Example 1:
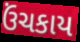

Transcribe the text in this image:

ઉંચકાય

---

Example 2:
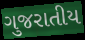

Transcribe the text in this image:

ગુજરાતીય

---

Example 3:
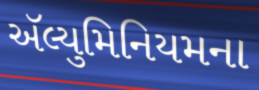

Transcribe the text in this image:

ઍલ્યુમિનિયમના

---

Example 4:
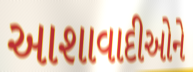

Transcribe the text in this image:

આશાવાદીઓને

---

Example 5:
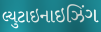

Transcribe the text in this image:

લ્યુટાઇનાઇઝિંગ